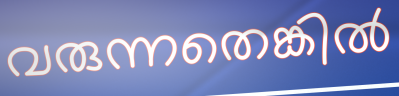
വരുന്നതെങ്കിൽ